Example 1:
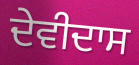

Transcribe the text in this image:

ਦੇਵੀਦਾਸ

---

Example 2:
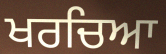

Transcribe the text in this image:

ਖਰਚਿਆ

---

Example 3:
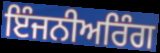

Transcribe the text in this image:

ਇੰਜਨੀਅਰਿੰਗ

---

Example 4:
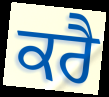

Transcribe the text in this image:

ਕਰੈ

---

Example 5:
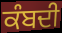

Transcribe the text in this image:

ਕੰਬਦੀ